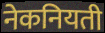
नेकनियती